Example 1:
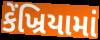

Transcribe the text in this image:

કેંખ્રિયામાં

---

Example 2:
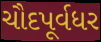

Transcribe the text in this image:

ચૌદપૂર્વધર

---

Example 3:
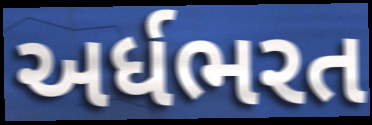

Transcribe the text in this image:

અર્ધભરત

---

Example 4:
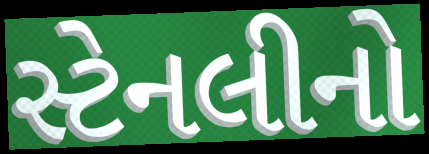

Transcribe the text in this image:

સ્ટેનલીનો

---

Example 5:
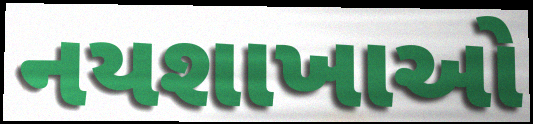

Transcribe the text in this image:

નયશાખાઓ